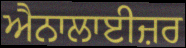
ਐਨਾਲਾਈਜ਼ਰ